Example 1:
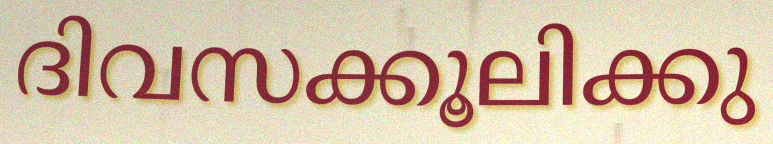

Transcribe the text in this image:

ദിവസക്കൂലിക്കു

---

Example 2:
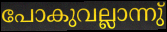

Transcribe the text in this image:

പോകുവല്ലാന്നു്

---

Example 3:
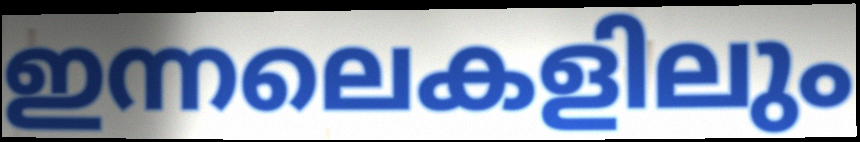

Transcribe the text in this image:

ഇന്നലെകളിലും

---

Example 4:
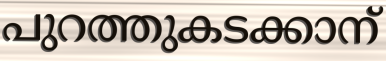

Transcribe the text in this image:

പുറത്തുകടക്കാന്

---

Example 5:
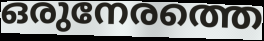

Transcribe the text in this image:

ഒരുനേരത്തെ